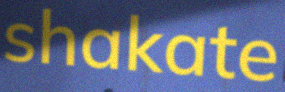
shakate